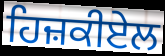
ਹਿਜ਼ਕੀਏਲ